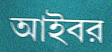
আইবর